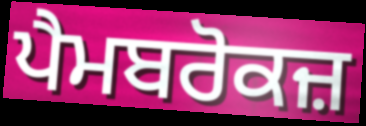
ਪੈਮਬਰੋਕਜ਼